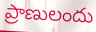
ప్రాణులందు